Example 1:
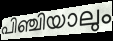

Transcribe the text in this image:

പിഞ്ചിയാലും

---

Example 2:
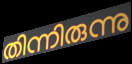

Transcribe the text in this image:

തിന്നിരുന്നു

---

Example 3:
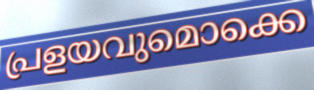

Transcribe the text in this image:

പ്രളയവുമൊക്കെ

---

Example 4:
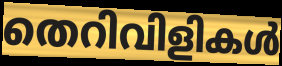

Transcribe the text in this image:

തെറിവിളികൾ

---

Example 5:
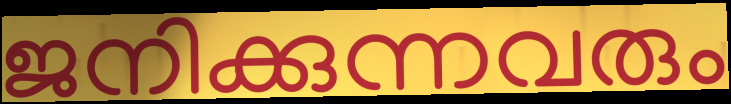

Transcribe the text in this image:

ജനിക്കുന്നവരും